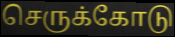
செருக்கோடு